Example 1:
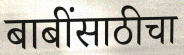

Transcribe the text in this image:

बाबींसाठीचा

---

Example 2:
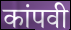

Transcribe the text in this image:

कांपवी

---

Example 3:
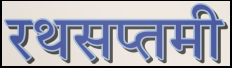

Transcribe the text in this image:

रथसप्तमी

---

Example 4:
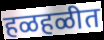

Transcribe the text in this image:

हळहळीत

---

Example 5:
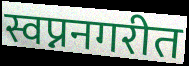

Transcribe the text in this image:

स्वप्ननगरीत